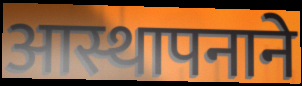
आस्थापनाने